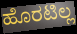
ಹೊರಟಿಲ್ಲ